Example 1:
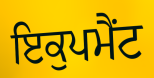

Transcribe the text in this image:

ਇਕੁਪਮੈਂਟ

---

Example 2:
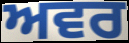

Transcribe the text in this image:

ਅਵਰ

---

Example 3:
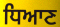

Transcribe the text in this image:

ਧਿਆਣ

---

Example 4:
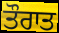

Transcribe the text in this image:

ਤੌਰਾਤ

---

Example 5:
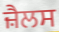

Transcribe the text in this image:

ਜ਼ੈਲਸ